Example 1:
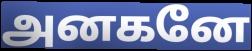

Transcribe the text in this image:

அனகனே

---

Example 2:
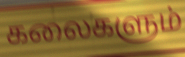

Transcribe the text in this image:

கலைகளும்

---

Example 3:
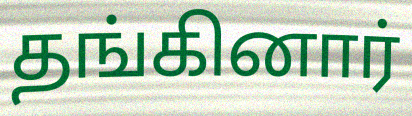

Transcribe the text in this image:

தங்கினார்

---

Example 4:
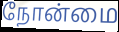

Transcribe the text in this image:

நோன்மை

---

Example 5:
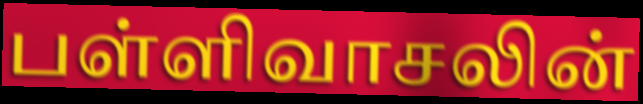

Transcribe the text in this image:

பள்ளிவாசலின்